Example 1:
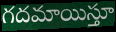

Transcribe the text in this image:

గదమాయిస్తూ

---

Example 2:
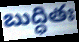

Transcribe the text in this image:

బుద్ధితః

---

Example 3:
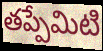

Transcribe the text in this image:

తప్పేమిటి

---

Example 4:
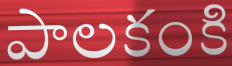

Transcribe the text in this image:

పాలకంకి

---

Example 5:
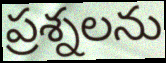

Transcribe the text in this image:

ప్రశ్నలను